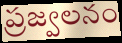
ప్రజ్వలనం